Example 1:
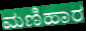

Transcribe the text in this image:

ಮಣಿಹಾರ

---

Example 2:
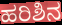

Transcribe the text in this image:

ಹರಿಶಿನ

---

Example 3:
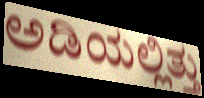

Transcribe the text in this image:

ಅಡಿಯಲ್ಲಿತ್ತು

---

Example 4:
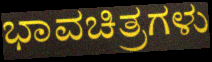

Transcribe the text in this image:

ಭಾವಚಿತ್ರಗಳು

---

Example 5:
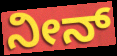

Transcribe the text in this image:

ನೀನ್